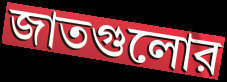
জাতগুলোর